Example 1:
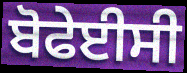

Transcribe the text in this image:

ਬੋਫੇਈਸੀ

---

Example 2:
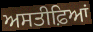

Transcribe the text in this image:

ਅਸਤੀਫ਼ਿਆਂ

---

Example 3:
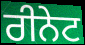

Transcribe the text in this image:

ਰੀਨੇਟ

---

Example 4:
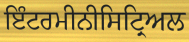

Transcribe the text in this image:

ਇੰਟਰਮੀਨੀਸਿਟ੍ਰਿਅਲ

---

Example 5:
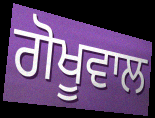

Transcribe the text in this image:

ਗੋਖੂਵਾਲ